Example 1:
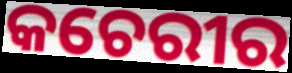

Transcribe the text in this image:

କଚେରୀର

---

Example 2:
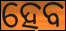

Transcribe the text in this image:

ହେବ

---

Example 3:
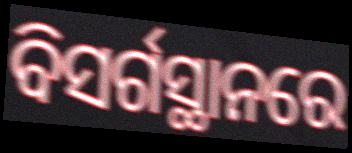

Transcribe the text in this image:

ବିସର୍ଗସ୍ଥାନରେ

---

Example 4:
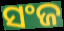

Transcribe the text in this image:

ସଂଜ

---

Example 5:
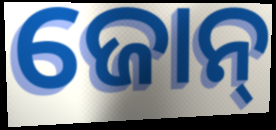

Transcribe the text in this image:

ଜୋନ୍